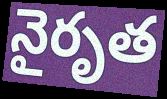
నైరృత